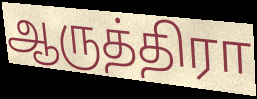
ஆருத்திரா